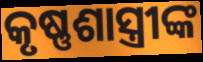
କୃଷ୍ଣଶାସ୍ତ୍ରୀଙ୍କ